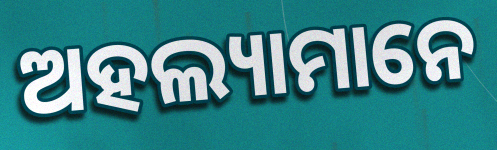
ଅହଲ୍ୟାମାନେ